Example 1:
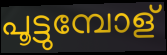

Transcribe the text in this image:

പൂട്ടുമ്പോള്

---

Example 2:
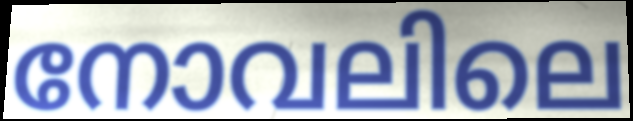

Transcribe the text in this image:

നോവലിലെ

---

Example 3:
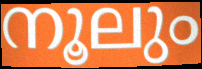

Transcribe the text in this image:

നൂലും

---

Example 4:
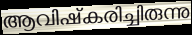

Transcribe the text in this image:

ആവിഷ്‌കരിച്ചിരുന്നു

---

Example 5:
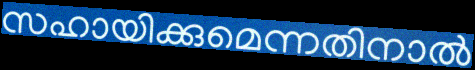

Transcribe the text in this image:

സഹായിക്കുമെന്നതിനാൽ